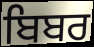
ਬਿਬਰ